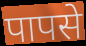
पापसे